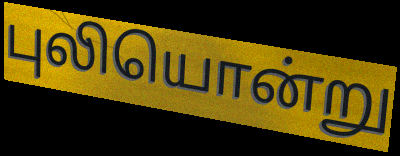
புலியொன்று